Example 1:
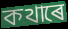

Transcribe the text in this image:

কথাৰে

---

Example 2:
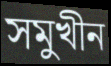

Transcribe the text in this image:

সমুখীন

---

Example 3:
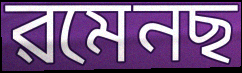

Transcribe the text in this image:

ৱমেনছ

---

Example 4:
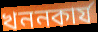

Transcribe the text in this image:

খননকাৰ্য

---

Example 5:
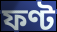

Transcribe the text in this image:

ফণ্ট